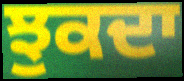
ਝੁਕਦਾ